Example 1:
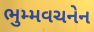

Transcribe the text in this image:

ભુમ્મવચનેન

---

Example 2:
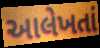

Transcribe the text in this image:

આલેખતાં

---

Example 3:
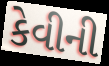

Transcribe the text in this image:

કેવીની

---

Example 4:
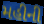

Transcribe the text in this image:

મહીની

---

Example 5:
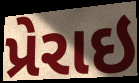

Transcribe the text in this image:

પ્રેરાઇ